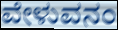
ವೇಳುವನಂ